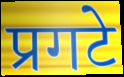
प्रगटे